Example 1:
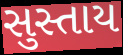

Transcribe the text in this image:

સુસ્તાય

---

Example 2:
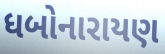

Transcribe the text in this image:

ધબોનારાયણ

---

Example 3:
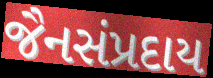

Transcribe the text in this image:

જૈનસંપ્રદાય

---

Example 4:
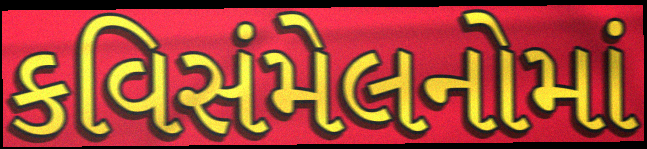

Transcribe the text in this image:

કવિસંમેલનોમાં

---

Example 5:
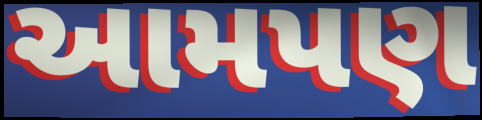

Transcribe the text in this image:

આમપણ